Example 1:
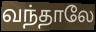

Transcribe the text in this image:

வந்தாலே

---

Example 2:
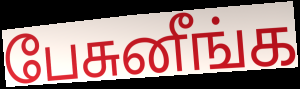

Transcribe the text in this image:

பேசுனீங்க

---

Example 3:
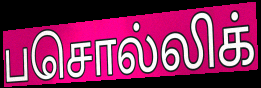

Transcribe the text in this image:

பசொல்லிக்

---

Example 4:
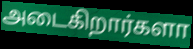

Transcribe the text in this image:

அடைகிறார்களா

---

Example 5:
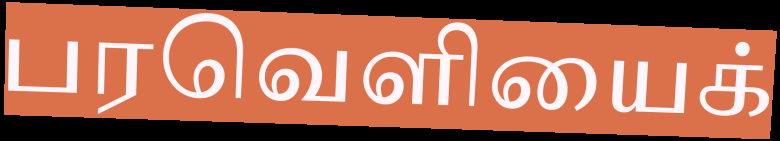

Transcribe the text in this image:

பரவெளியைக்